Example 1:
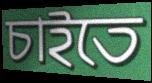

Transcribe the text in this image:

চাইতে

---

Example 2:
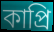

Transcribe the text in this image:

কাপ্রি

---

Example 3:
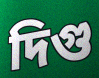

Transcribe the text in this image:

দিগু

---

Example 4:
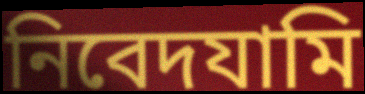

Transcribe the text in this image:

নিবেদযামি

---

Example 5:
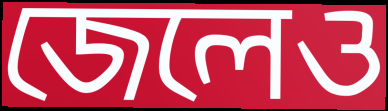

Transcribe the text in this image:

জেলেও